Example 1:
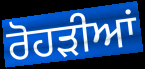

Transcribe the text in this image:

ਰੋਹੜੀਆਂ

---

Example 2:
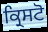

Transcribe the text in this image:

ਕ੍ਰਿਸਟੋ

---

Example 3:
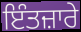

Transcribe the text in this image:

ਇੰਤਜ਼ਾਰੇ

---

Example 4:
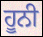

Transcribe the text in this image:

ਹੂਨੀ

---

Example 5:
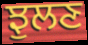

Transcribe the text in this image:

ਝੁਲਣ